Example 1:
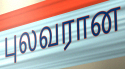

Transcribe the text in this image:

புலவரான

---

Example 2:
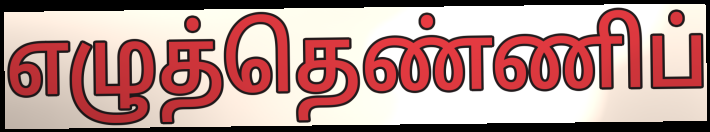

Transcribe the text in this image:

எழுத்தெண்ணிப்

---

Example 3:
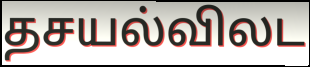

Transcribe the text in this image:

தசயல்விலட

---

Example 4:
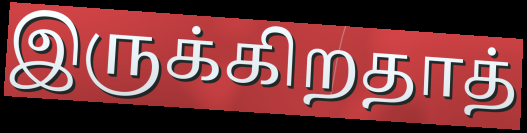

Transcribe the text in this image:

இருக்கிறதாத்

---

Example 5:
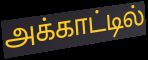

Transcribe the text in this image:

அக்காட்டில்